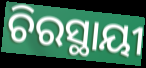
ଚିରସ୍ଥାୟୀ